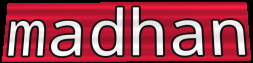
madhan